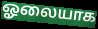
ஓலையாக